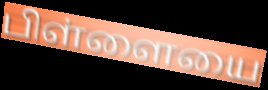
பிள்ளையை